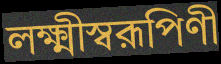
লক্ষ্মীস্বরূপিণী